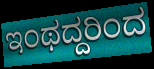
ಇಂಥದ್ದರಿಂದ